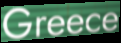
Greece